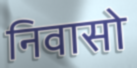
निवासो